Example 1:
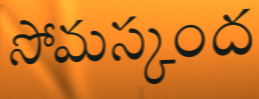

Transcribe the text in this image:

సోమస్కంద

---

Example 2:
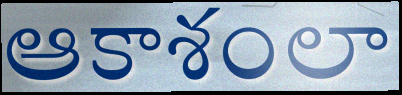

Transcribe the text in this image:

ఆకాశంలా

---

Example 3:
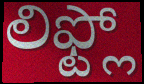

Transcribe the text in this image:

లిఫ్ట్లో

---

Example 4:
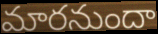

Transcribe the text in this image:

మారనుందా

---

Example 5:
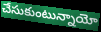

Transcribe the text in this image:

చేసుకుంటున్నాయో